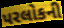
પરલોકની